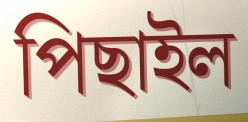
পিছাইল